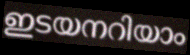
ഇടയനറിയാം